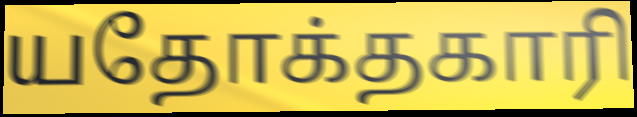
யதோக்தகாரி